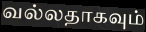
வல்லதாகவும்